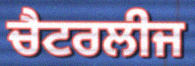
ਚੈਟਰਲੀਜ